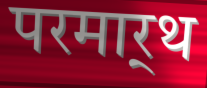
परमार्थ